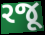
રજૂ